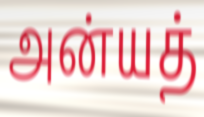
அன்யத்